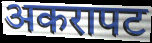
अकरापट